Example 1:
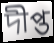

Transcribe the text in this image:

দীপ্ত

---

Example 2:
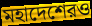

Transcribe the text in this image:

মহাদেশেরও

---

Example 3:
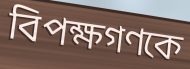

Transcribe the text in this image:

বিপক্ষগণকে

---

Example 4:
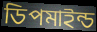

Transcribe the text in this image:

ডিপমাইন্ড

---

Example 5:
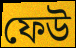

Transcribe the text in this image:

ফেউ